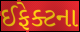
ઈફેક્ટના